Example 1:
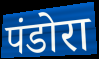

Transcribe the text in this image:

पंडोरा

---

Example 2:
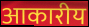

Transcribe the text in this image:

आकारीय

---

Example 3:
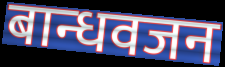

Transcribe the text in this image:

बान्धवजन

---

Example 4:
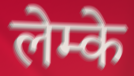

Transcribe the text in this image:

लेम्के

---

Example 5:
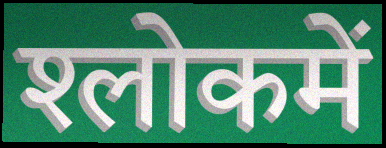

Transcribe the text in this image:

श्‍लोकमें